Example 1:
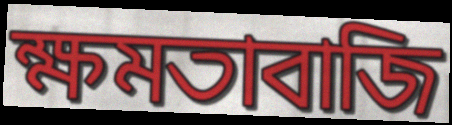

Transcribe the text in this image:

ক্ষমতাবাজি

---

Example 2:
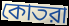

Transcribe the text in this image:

কোতরা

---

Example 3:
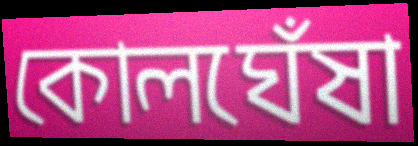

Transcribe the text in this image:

কোলঘেঁষা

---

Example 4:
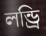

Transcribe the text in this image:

লন্ড্রি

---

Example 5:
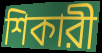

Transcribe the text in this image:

শিকারী